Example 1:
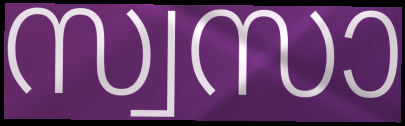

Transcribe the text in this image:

സ്വസാ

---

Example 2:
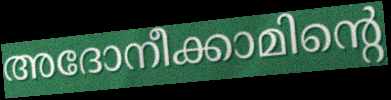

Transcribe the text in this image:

അദോനീക്കാമിന്റെ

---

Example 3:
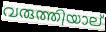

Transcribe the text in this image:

വരുത്തിയാല്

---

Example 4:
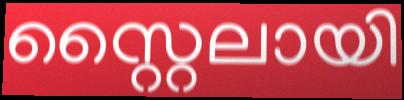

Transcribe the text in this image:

സ്റ്റൈലായി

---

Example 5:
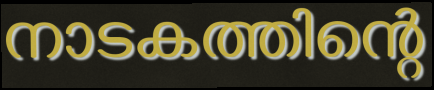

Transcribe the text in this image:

നാടകത്തിന്റെ